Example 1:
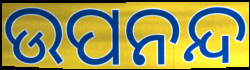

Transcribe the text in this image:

ଉପନନ୍ଦ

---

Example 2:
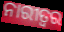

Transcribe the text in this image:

ନାରୀତ୍ୱର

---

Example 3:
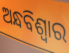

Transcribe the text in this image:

ଅନ୍ଧବିଶ୍ୱାର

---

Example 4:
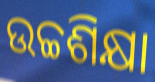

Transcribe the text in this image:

ଉଚ୍ଚଶିକ୍ଷା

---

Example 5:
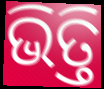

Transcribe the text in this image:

ଭିତ୍ତି